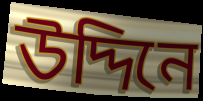
উদ্দিনে